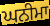
ਘਨੀਮਾ